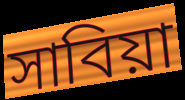
সাবিয়া